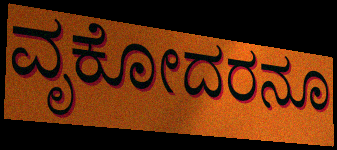
ವೃಕೋದರನೂ